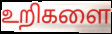
உறிகளை